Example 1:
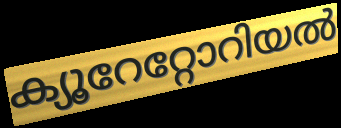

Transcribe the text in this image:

ക്യൂറേറ്റോറിയൽ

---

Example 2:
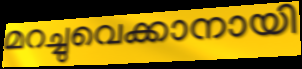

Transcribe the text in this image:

മറച്ചുവെക്കാനായി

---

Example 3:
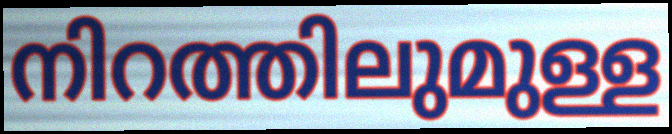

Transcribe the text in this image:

നിറത്തിലുമുള്ള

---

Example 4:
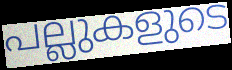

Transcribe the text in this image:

പല്ലുകളുടെ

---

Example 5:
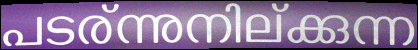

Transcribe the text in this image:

പടര്ന്നുനില്ക്കുന്ന